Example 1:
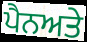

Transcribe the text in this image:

ਪੈਨਅਤੇ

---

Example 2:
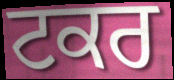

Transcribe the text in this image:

ਟਕਰ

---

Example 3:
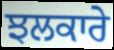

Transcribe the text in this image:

ਝਲਕਾਰੇ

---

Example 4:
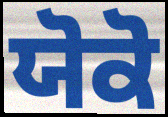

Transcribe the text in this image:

ਯੋਕੋ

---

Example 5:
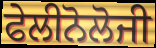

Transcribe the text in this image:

ਫੇਲੀਨੋਲੋਜੀ